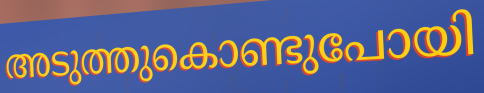
അടുത്തുകൊണ്ടുപോയി